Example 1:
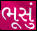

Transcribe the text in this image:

ભૂસું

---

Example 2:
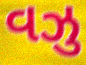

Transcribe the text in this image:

વઝુ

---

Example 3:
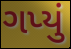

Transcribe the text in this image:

ગપ્યું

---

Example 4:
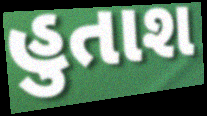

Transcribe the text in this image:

હુતાશ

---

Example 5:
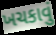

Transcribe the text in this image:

ખચકાવું